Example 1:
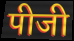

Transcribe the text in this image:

पीजी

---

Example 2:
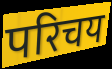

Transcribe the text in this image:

परिचय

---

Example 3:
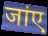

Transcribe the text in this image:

जांए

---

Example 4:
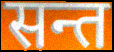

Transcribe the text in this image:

सन्त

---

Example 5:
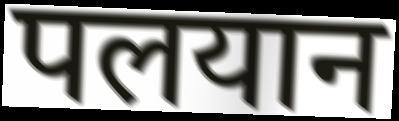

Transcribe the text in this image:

पलयान